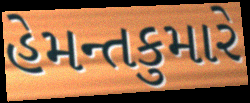
હેમન્તકુમારે